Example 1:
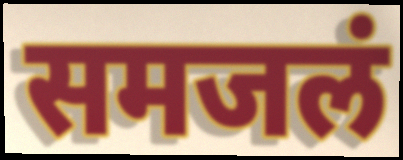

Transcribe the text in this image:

समजलं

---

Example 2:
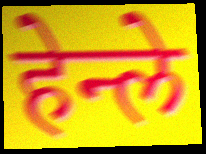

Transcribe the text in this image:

हेन्ले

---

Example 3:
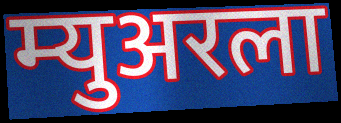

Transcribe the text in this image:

म्युअरला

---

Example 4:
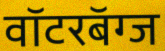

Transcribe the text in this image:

वॉटरबॅग्ज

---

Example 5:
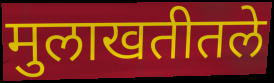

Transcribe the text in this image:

मुलाखतीतले